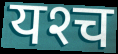
यश्च